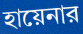
হায়েনার